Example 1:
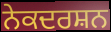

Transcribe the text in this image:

ਨੇਕਦਰਸ਼ਨ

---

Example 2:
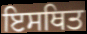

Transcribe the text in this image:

ਇਸਥਿਤ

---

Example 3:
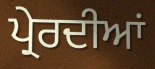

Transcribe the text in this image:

ਪ੍ਰੇਰਦੀਆਂ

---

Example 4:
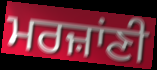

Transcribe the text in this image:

ਮਰਜ਼ਾਂਣੀ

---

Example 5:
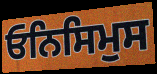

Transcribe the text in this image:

ਓਨਿਸਿਮੁਸ